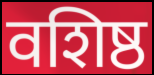
वशिष्ठ